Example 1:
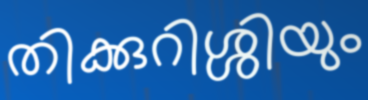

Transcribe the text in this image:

തിക്കുറിശ്ശിയും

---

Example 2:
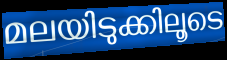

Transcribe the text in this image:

മലയിടുക്കിലൂടെ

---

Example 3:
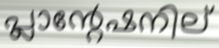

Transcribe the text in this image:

പ്ലാന്റേഷനില്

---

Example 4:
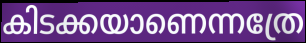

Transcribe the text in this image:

കിടക്കയാണെന്നത്രേ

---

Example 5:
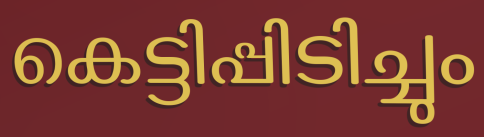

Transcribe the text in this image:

കെട്ടിപ്പിടിച്ചും